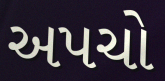
અપચો